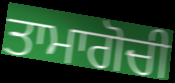
ਤਾਮਾਗੋਚੀ